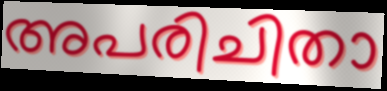
അപരിചിതാ